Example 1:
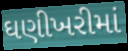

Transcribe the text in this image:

ઘણીખરીમાં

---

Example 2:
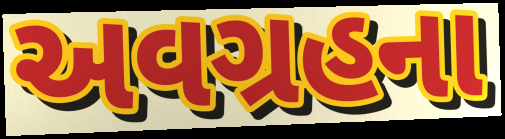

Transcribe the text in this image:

અવગ્રહના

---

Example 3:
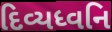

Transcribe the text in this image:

દિવ્યધ્વનિ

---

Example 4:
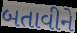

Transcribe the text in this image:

બતાવીને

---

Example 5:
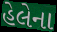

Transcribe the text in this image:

હેલેના